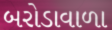
બરોડાવાળા